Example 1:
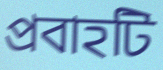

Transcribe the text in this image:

প্রবাহটি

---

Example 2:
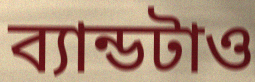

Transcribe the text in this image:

ব্যান্ডটাও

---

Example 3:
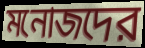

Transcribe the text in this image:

মনোজদের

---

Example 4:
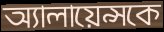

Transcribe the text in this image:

অ্যালায়েন্সকে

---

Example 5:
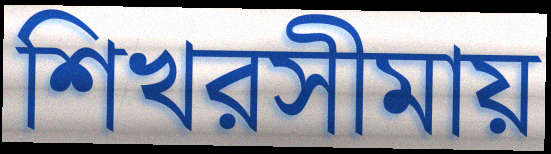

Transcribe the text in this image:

শিখরসীমায়